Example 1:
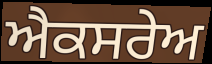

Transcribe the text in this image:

ਐਕਸਰੇਅ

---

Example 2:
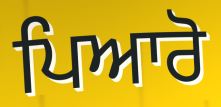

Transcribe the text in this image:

ਪਿਆਰੋ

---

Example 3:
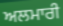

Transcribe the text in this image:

ਅਲਮਾਰੀ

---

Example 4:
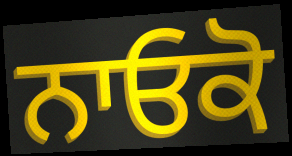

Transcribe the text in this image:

ਨਾਓਕੋ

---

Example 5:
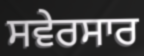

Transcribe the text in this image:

ਸਵੇਰਸਾਰ